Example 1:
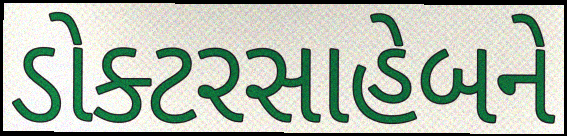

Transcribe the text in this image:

ડોક્ટરસાહેબને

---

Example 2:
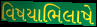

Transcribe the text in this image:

વિષયાભિલાષે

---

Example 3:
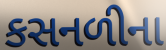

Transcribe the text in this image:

કસનળીના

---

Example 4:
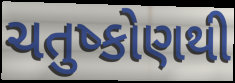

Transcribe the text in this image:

ચતુષ્કોણથી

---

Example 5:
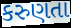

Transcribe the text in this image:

કરુણતા